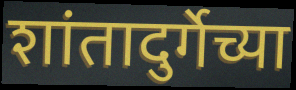
शांतादुर्गेच्या